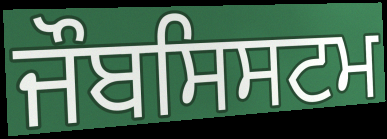
ਜੌਬਸਿਸਟਮ